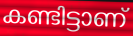
കണ്ടിട്ടാണ്